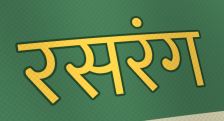
रसरंग